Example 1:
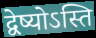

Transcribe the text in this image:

द्वेष्योऽस्ति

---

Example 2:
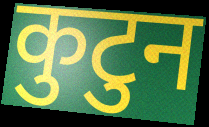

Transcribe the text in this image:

कुटुन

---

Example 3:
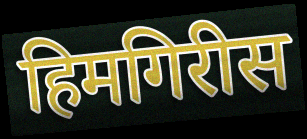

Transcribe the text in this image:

हिमगिरीस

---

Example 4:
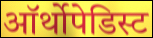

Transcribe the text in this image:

ऑर्थोपेडिस्ट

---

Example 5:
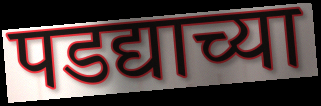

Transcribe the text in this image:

पडद्याच्या